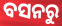
ବସନରୁ